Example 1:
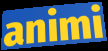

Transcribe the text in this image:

animi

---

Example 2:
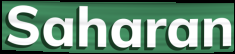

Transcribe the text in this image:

Saharan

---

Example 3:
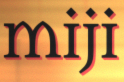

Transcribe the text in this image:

miji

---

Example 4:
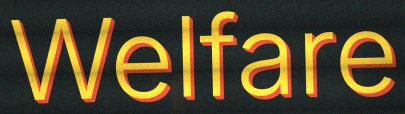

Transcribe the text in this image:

Welfare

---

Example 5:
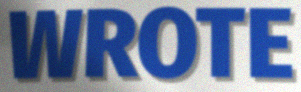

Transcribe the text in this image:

WROTE